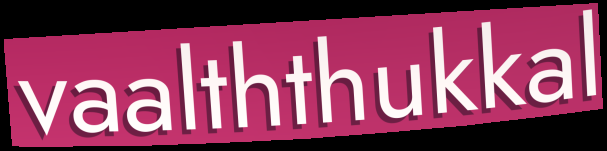
vaalththukkal